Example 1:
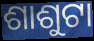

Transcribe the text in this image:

ଶାଶୁଟା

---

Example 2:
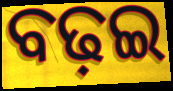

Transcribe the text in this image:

ବଢ଼ଇ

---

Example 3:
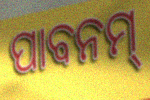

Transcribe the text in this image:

ପାବନମ୍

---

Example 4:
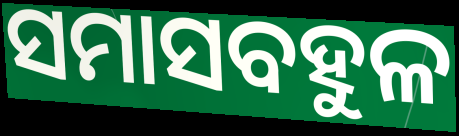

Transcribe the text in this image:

ସମାସବହୁଳ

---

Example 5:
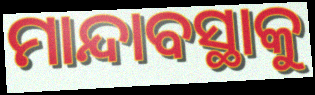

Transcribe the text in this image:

ମାନ୍ଦାବସ୍ଥାକୁ